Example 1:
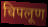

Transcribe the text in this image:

चिपलूण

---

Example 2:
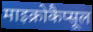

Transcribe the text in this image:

माइक्रोकैप्सूल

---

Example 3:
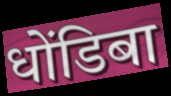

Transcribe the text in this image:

धोंडिबा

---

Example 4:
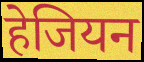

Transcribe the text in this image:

हेजियन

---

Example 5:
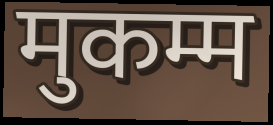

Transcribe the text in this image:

मुकम्म